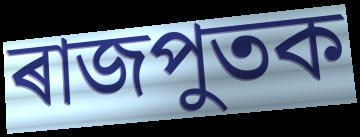
ৰাজপুতক